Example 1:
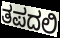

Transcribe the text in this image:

ತಪದಲಿ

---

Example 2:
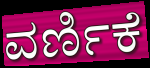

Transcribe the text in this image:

ವರ್ಣಿಕೆ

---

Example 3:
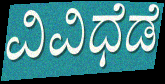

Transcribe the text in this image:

ವಿವಿಧೆಡೆ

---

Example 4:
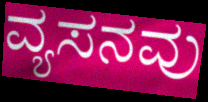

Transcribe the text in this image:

ವ್ಯಸನವು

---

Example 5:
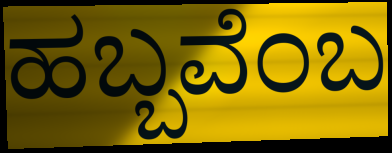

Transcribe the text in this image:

ಹಬ್ಬವೆಂಬ